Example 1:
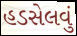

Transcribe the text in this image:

હડસેલવું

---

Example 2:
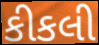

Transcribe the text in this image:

કીકલી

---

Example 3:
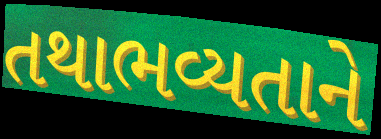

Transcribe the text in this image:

તથાભવ્યતાને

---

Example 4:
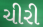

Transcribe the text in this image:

ચીરી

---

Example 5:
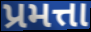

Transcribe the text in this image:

પ્રમત્તા